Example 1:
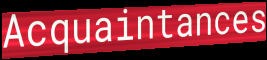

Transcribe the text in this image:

Acquaintances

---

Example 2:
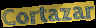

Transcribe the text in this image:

Cortazar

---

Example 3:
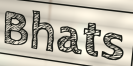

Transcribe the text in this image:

Bhats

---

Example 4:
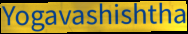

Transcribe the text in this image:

Yogavashishtha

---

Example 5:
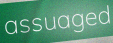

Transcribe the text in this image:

assuaged